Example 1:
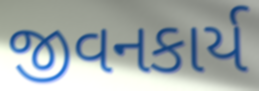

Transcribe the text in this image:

જીવનકાર્ય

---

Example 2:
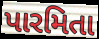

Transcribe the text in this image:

પારમિતા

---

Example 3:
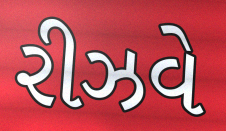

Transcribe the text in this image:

રીઝવે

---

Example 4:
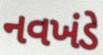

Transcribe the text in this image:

નવખંડે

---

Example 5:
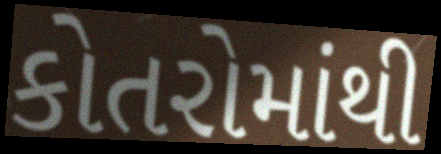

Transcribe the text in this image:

કોતરોમાંથી